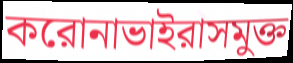
করোনাভাইরাসমুক্ত